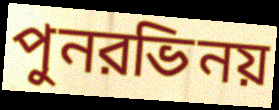
পুনরভিনয়